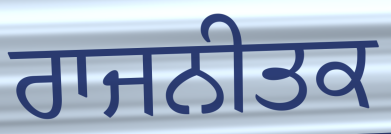
ਰਾਜਨੀਤਕ